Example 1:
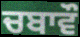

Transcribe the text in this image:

ਚਬਾਵੌ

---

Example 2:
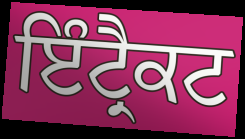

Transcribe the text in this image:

ਇੰਟ੍ਰੈਕਟ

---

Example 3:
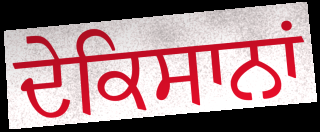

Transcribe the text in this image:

ਦੇਕਿਸਾਨਾਂ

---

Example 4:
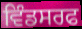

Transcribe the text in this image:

ਵਿੰਡਸਰਫ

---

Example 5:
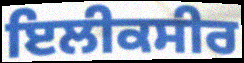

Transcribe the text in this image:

ਇਲੀਕਸੀਰ